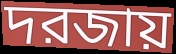
দরজায়